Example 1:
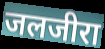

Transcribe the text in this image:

जलजीरा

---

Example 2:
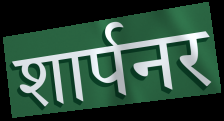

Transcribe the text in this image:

शार्पनर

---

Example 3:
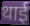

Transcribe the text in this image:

थाई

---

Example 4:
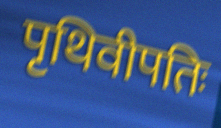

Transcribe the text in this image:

पृथिवीपतिः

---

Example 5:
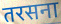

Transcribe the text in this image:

तरसना